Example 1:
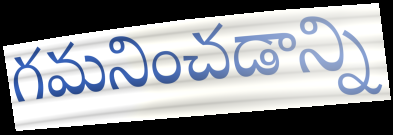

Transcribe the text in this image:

గమనించడాన్ని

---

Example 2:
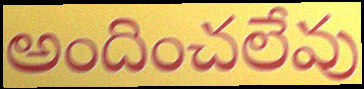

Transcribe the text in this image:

అందించలేవు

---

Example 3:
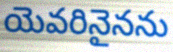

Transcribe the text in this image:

యెవరినైనను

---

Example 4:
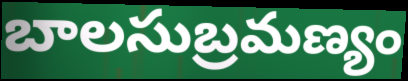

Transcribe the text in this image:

బాలసుబ్రమణ్యం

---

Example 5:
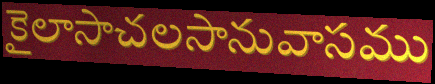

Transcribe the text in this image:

కైలాసాచలసానువాసము